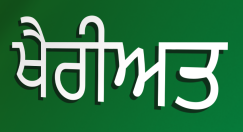
ਖੈਰੀਅਤ